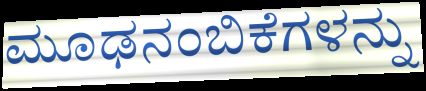
ಮೂಢನಂಬಿಕೆಗಳನ್ನು